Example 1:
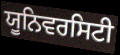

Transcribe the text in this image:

ਯੂਨਿਵਰਸਿਟੀ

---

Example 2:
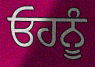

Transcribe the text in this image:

ਓਹਨੂੰ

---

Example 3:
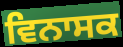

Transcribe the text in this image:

ਵਿਨਾਸਕ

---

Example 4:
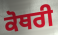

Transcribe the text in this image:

ਕੋਥਰੀ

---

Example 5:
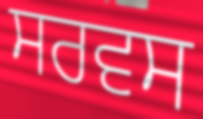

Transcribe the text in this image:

ਸਰਵਸ